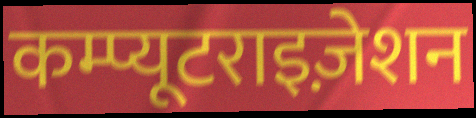
कम्प्यूटराइज़ेशन